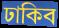
ঢাকিব